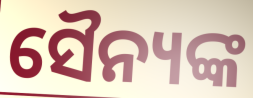
ସୈନ୍ୟଙ୍କ